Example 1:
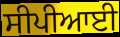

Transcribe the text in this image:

ਸੀਪੀਆਈ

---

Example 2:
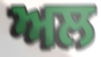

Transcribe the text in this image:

ਅਲ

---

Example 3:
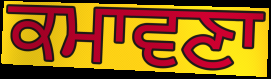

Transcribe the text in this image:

ਕਮਾਵਣਾ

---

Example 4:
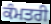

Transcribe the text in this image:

ਕੰਮਤਰੀ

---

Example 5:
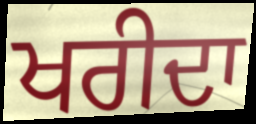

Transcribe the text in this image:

ਖਰੀਦਾ